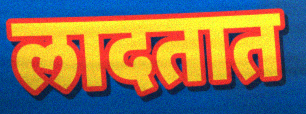
लादतात